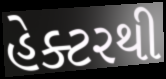
હેક્ટરથી